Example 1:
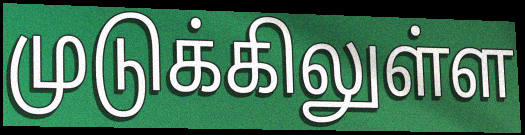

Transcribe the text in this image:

முடுக்கிலுள்ள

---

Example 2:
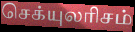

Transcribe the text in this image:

செக்யுலரிசம்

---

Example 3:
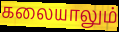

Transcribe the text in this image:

கலையாலும்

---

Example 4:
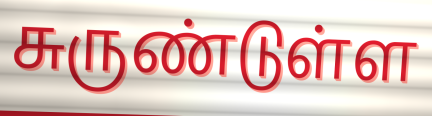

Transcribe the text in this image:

சுருண்டுள்ள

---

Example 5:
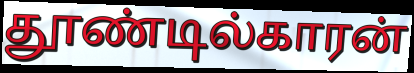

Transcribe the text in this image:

தூண்டில்காரன்